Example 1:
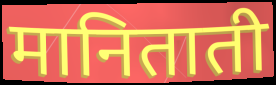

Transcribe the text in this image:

मानिताती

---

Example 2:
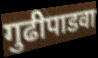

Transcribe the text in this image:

गुढीपाडवा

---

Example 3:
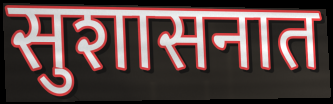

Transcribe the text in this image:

सुशासनात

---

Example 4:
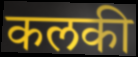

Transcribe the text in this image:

कलकी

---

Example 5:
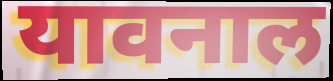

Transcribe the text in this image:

यावनाल